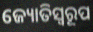
ଜ୍ୟୋତିସ୍ୱରୂପ